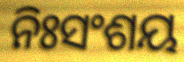
ନିଃସଂଶୟ